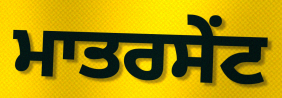
ਮਾਤਰਸੇਂਟ